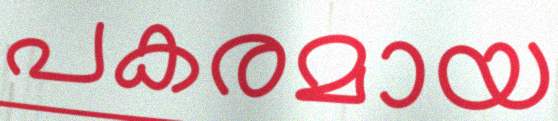
പകരമായ